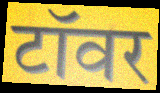
टॉवर